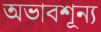
অভাবশূন্য